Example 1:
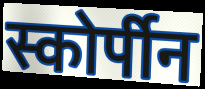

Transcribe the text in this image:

स्कोर्पीन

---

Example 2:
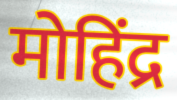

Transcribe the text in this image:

मोहिंद्र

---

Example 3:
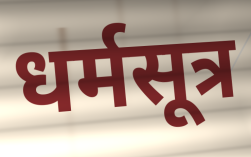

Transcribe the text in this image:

धर्मसूत्र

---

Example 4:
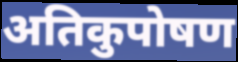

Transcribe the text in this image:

अतिकुपोषण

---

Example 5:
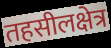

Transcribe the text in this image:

तहसीलक्षेत्र